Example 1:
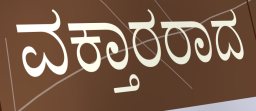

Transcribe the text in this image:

ವಕ್ತಾರರಾದ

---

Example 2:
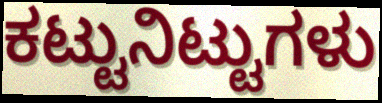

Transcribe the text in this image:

ಕಟ್ಟುನಿಟ್ಟುಗಳು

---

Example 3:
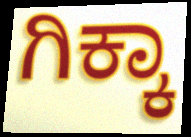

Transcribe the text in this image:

ಗಿಕ್ಕಾ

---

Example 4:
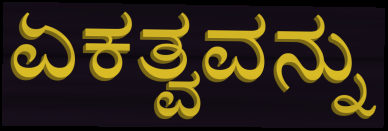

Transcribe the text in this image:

ಏಕತ್ವವನ್ನು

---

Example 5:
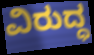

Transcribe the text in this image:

ವಿರುದ್ಧ